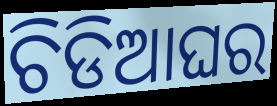
ଚିଡିଆଘର